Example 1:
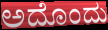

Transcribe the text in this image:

ಅದೊಂದು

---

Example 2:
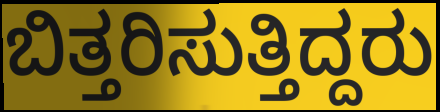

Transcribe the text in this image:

ಬಿತ್ತರಿಸುತ್ತಿದ್ದರು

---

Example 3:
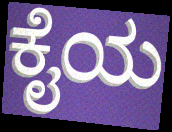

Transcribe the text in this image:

ಕೈಯ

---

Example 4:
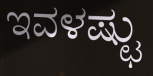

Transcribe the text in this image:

ಇವಳಷ್ಟು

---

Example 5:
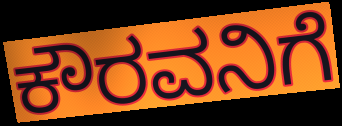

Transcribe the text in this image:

ಕೌರವನಿಗೆ